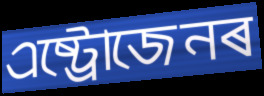
এষ্ট্ৰোজেনৰ